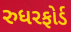
રુધરફોર્ડ